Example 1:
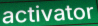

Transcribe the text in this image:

activator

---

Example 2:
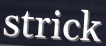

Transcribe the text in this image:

strick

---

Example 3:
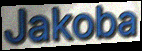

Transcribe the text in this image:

Jakoba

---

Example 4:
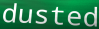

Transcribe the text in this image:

dusted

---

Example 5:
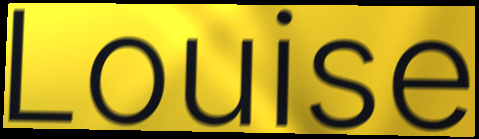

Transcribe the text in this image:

Louise